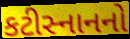
કટીસ્નાનનો